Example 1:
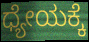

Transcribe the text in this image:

ಧ್ಯೇಯಕ್ಕೆ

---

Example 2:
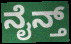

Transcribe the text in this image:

ನೈನ್ತ್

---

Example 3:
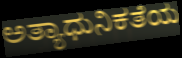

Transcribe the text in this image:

ಅತ್ಯಾಧುನಿಕತೆಯ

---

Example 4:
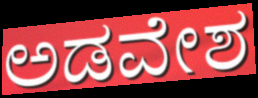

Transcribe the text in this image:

ಅಡವೇಶ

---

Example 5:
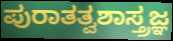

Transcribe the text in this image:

ಪುರಾತತ್ವಶಾಸ್ತ್ರಜ್ಞ